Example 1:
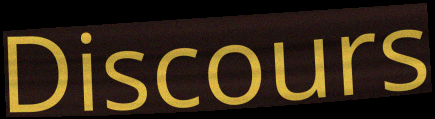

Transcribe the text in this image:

Discours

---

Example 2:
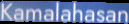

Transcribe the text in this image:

Kamalahasan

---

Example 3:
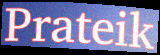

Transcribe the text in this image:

Prateik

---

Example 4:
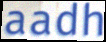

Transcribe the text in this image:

aadh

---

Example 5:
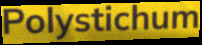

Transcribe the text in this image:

Polystichum